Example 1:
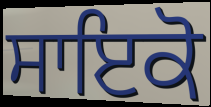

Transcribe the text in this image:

ਸਾਇਕੋ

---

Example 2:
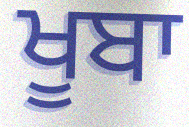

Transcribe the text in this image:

ਖੂਬਾ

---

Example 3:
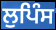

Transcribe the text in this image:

ਲੁਪਿੰਸ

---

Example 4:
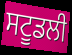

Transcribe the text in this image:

ਸਟੂਡਲੀ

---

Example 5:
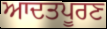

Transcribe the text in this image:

ਆਦਤਪੂਰਣ